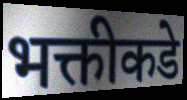
भक्तीकडे